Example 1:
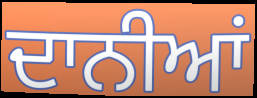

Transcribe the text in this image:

ਦਾਨੀਆਂ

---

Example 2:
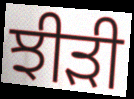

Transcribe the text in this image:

ਝੀੜੀ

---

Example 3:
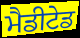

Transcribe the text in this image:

ਮੈਡੀਟੇਡ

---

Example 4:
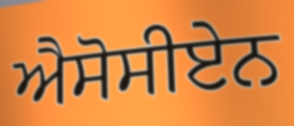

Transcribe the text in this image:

ਐਸੋਸੀਏਨ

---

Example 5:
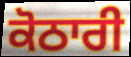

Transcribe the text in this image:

ਕੋਠਾਰੀ